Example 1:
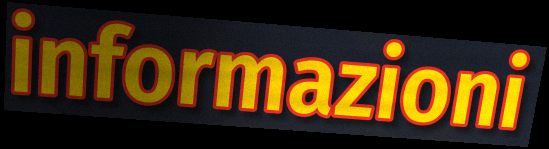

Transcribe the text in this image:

informazioni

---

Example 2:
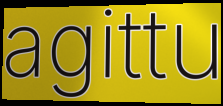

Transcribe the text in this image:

agittu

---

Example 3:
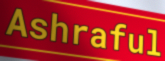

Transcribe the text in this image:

Ashraful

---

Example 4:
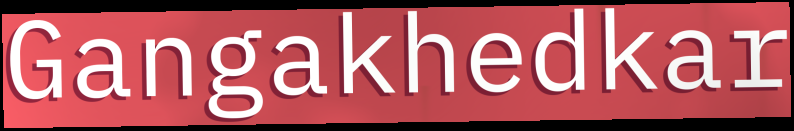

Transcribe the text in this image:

Gangakhedkar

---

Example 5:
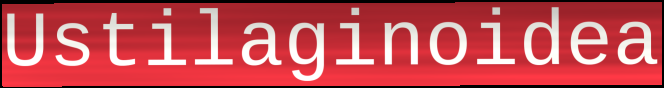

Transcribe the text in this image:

Ustilaginoidea